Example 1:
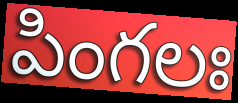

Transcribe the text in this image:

పింగలః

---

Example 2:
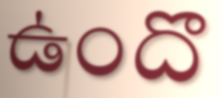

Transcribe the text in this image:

ఉందొ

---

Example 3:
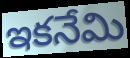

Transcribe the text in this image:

ఇకనేమి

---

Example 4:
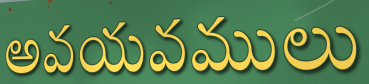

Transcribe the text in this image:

అవయవములు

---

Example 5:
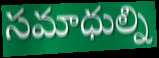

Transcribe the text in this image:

సమాధుల్ని